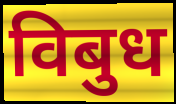
विबुध